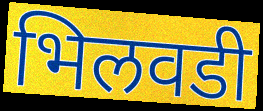
भिलवडी